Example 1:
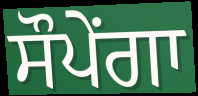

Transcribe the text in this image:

ਸੌਪੇਂਗਾ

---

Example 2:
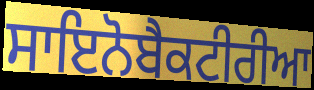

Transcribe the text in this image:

ਸਾਇਨੋਬੈਕਟੀਰੀਆ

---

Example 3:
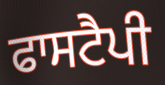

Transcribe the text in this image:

ਫਾਸਟੈਪੀ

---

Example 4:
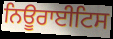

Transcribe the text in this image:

ਨਿਊਰਾਈਟਿਸ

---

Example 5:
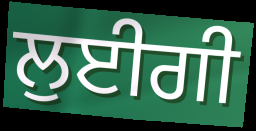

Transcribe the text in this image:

ਲੁਈਗੀ